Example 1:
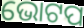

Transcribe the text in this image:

ଭୋଟପ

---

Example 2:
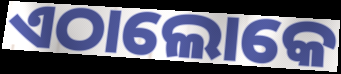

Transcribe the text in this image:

ଏଠାଲୋକେ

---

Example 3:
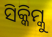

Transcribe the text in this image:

ସିକ୍କିମ୍କୁ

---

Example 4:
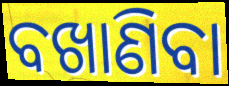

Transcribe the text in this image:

ବଖାଣିବା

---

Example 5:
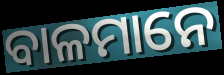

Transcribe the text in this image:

ବାଳମାନେ